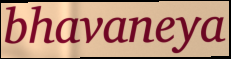
bhavaneya